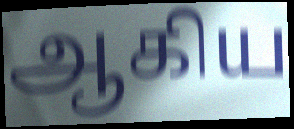
ஆகிய